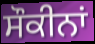
ਸੌਕੀਨਾਂ